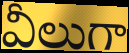
వీలుగా